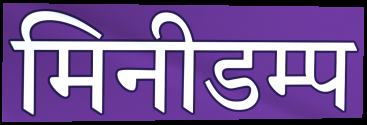
मिनीडम्प